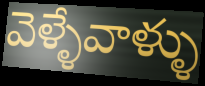
వెళ్ళేవాళ్ళు